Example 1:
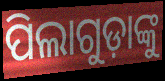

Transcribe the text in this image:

ପିଲାଗୁଡ଼ାଙ୍କୁ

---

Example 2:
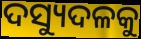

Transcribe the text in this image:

ଦସ୍ୟୁଦଳକୁ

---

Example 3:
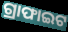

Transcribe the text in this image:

ଗ୍ରାଫାଇଟ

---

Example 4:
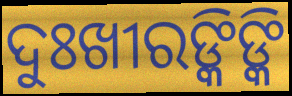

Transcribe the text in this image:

ଦୁଃଖୀରଙ୍କିଙ୍କି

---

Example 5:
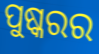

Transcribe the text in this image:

ପୁଷ୍କରର